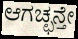
ಆಗಚ್ಛನ್ತೇ